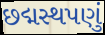
છદ્મસ્થપણું